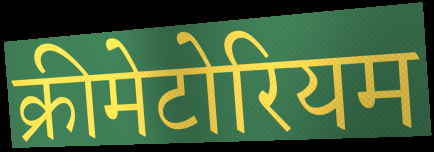
क्रीमेटोरियम